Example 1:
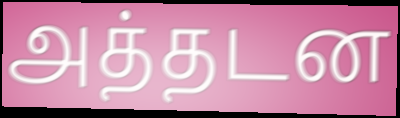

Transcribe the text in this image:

அத்தடன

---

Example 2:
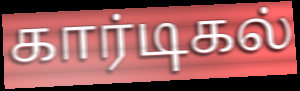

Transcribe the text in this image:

கார்டிகல்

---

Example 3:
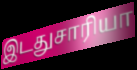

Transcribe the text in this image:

இடதுசாரியா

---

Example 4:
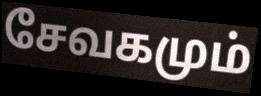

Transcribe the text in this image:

சேவகமும்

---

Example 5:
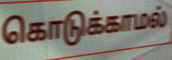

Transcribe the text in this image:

கொடுக்காமல்